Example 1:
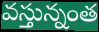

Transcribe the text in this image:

వస్తున్నంత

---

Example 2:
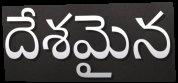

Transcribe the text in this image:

దేశమైన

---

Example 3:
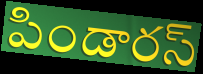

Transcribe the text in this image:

పిండారస్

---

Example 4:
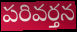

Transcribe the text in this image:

పరివర్తన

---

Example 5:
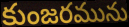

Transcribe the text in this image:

కుంజరమును